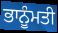
ਭਾਨੂੰਮਤੀ